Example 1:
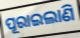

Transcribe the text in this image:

ପୂରାଇଲାଣି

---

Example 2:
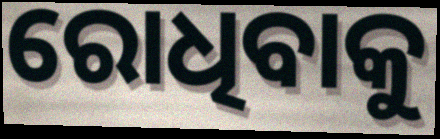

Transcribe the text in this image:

ରୋଧିବାକୁ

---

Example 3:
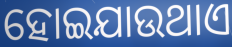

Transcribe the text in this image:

ହୋଇଯାଉଥାଏ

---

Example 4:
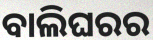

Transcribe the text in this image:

ବାଲିଘରର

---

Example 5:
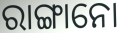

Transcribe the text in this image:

ରାଙ୍ଗାନୋ